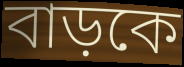
বাড়কে